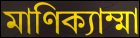
মাণিক্যাম্মা